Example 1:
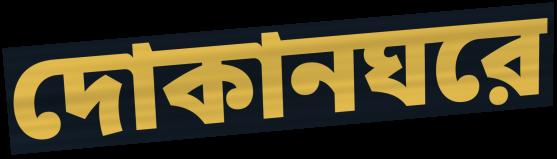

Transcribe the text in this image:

দোকানঘরে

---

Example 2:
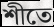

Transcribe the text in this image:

শীতে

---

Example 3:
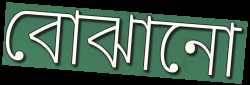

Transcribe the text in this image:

বোঝানো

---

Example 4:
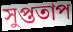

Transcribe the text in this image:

সুপ্ততাপ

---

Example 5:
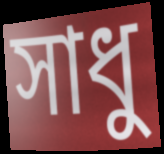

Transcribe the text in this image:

সাধু